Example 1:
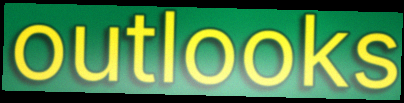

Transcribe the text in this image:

outlooks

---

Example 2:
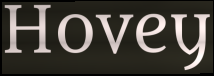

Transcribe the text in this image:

Hovey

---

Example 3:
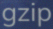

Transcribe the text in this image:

gzip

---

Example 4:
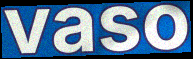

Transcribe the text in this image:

vaso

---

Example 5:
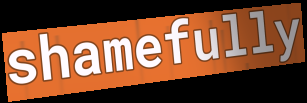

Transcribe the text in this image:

shamefully